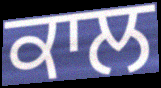
ਕਾਲ